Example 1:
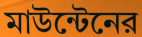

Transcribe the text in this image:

মাউন্টেনের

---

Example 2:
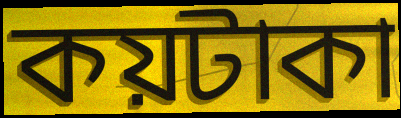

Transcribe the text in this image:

কয়টাকা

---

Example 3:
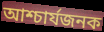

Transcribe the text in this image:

আশ্চার্যজনক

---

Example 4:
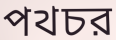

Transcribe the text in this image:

পথচর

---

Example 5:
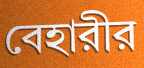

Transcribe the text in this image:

বেহারীর